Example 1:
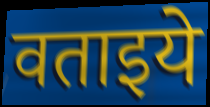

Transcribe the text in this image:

वताइये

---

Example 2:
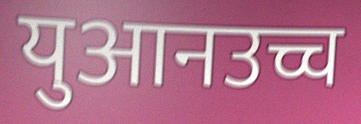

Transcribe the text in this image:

युआनउच्च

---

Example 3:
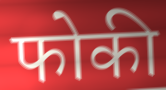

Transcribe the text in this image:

फोकी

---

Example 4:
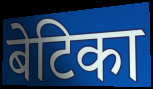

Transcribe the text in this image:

बेटिका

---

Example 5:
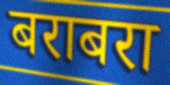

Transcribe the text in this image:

बराबरा